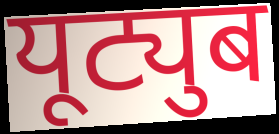
यूट्युब